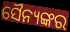
ସୈନ୍ୟଙ୍କର